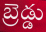
బ్రెడ్డు